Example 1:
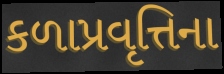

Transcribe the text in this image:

કળાપ્રવૃત્તિના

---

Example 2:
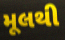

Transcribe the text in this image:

મૂલથી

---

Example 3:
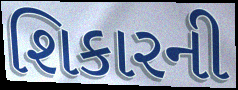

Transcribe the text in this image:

શિકારની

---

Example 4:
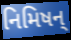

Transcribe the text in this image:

નિમિષન્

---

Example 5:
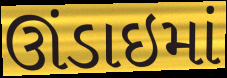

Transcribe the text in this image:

ઊંડાઇમાં